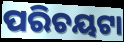
ପରିଚୟଟା